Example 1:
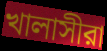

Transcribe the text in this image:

খালাসীরা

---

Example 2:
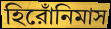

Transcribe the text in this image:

হিরোঁনিমাস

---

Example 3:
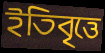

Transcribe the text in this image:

ইতিবৃত্তে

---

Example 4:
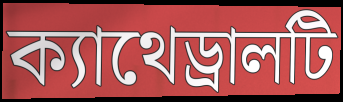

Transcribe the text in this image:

ক্যাথেড্রালটি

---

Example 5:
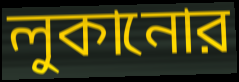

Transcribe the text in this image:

লুকানোর